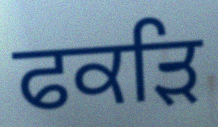
ਫਕੜਿ